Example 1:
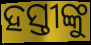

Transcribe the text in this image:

ହସ୍ତୀଙ୍କୁ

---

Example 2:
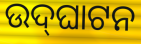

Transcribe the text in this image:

ଉଦ୍‍ଘାଟନ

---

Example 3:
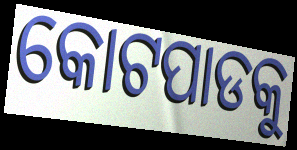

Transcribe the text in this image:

କୋଟପାଡକୁ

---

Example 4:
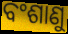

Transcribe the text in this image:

ବଂଶାଣୁ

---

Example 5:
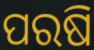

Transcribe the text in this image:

ପରଷି